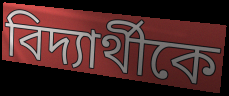
বিদ্যার্থীকে